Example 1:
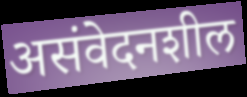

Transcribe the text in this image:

असंवेदनशील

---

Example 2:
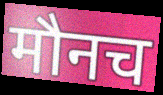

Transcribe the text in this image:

मौनच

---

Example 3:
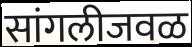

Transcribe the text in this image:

सांगलीजवळ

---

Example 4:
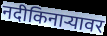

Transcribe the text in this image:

नदीकिनाऱ्यावर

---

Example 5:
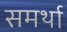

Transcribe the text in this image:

समर्था